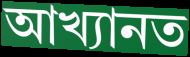
আখ্যানত